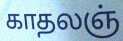
காதலஞ்